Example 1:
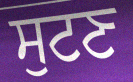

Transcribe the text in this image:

ਸੁਟਣ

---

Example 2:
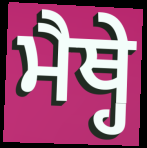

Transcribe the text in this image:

ਮੈਥ੍ਹੇ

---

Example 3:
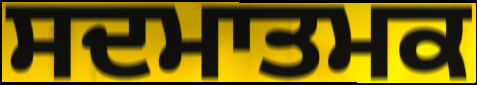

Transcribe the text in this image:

ਸਦਮਾਤਮਕ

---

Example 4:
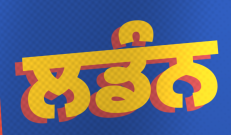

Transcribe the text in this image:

ਲਡੰਨ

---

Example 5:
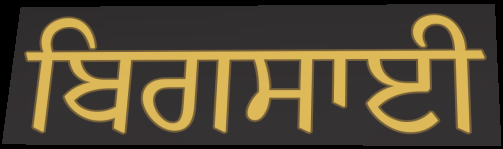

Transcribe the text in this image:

ਬਿਗਸਾਈ